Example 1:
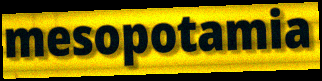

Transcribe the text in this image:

mesopotamia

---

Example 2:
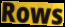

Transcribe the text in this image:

Rows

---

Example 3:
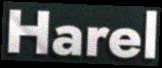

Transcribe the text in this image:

Harel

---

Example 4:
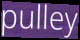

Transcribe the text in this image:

pulley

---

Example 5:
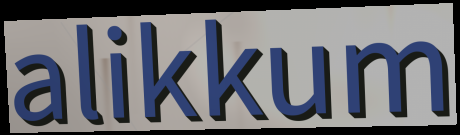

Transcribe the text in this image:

alikkum